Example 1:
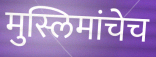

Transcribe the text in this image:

मुस्लिमांचेच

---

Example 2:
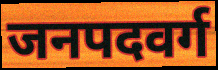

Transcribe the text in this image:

जनपदवर्ग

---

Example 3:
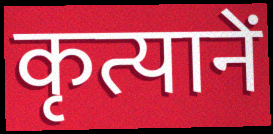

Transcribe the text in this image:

कृत्यानें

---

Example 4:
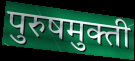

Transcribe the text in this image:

पुरुषमुक्ती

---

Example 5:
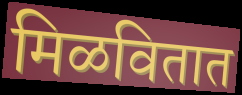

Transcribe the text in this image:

मिळवितात